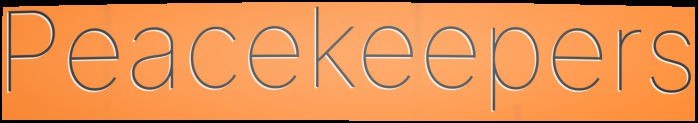
Peacekeepers